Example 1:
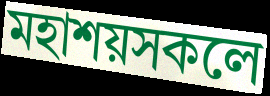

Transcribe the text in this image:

মহাশয়সকলে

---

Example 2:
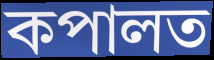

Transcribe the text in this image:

কপালত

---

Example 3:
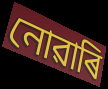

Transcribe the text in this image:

নোৱাৰি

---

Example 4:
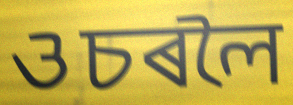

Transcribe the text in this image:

ওচৰলৈ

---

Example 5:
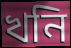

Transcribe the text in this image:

খনি